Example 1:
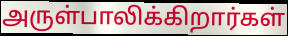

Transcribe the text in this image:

அருள்பாலிக்கிறார்கள்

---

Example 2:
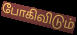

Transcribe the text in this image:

போகிவிடும்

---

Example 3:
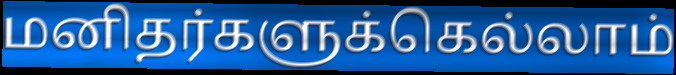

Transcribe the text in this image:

மனிதர்களுக்கெல்லாம்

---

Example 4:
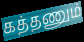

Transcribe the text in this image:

கத்தணும்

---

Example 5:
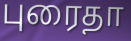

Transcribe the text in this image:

புரைதா